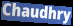
Chaudhry